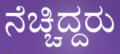
ನೆಚ್ಚಿದ್ದರು